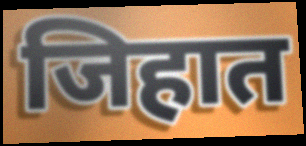
जिहात